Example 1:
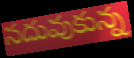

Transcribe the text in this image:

సదువుకున్న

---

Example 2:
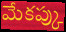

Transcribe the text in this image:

మేకప్కు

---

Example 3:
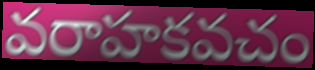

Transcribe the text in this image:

వరాహకవచం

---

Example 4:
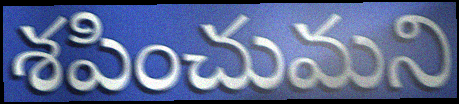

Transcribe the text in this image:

శపించుమని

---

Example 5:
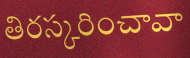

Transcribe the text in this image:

తిరస్కరించావా